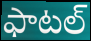
ఫాటల్